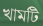
খামটি